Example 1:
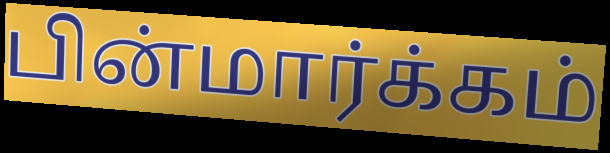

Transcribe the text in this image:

பின்மார்க்கம்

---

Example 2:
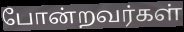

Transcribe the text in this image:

போன்றவர்கள்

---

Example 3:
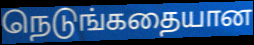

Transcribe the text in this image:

நெடுங்கதையான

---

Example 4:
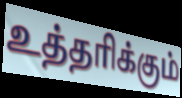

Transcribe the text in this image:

உத்தரிக்கும்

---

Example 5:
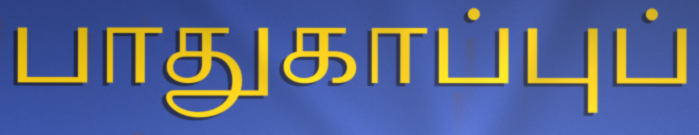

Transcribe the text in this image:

பாதுகாப்புப்